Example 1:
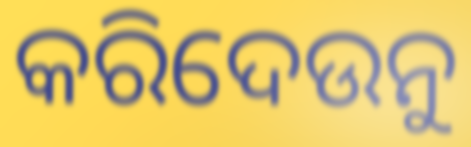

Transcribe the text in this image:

କରିଦେଉନୁ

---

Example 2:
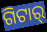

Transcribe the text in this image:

ଗିଟାର୍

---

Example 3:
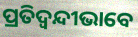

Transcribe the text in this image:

ପ୍ରତିଦ୍ୱନ୍ଦୀଭାବେ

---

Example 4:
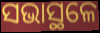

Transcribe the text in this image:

ସଭାସ୍ଥଳେ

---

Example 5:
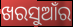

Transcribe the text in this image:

ଖରସୁଆଁର